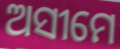
ଅସୀମେ